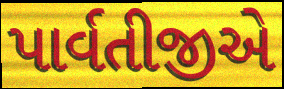
પાર્વતીજીએ